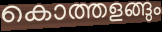
കൊത്തളങ്ങും